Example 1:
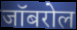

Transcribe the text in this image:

जॉबरोल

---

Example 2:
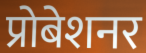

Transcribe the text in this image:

प्रोबेशनर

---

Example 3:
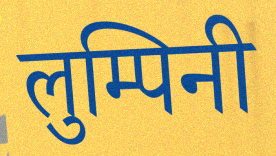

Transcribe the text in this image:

लुम्पिनी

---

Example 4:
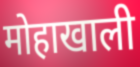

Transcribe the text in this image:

मोहाखाली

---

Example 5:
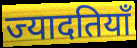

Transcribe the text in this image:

ज्यादतियाँ